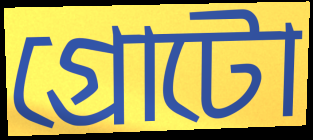
গ্রোটো